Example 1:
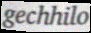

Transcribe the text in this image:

gechhilo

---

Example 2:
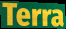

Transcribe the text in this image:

Terra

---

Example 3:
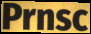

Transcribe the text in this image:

Prnsc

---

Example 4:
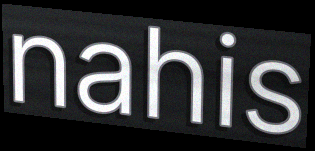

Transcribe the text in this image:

nahis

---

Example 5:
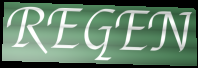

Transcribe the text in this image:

REGEN